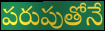
పరుపుతోనే